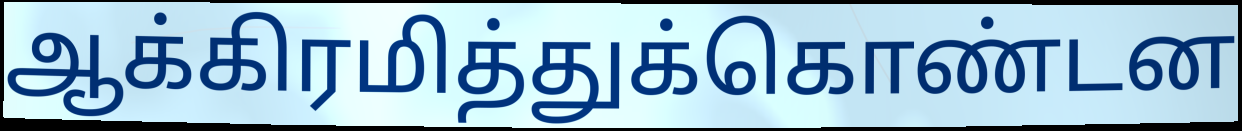
ஆக்கிரமித்துக்கொண்டன